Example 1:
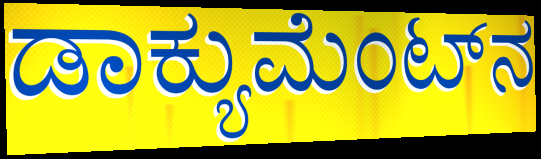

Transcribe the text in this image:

ಡಾಕ್ಯುಮೆಂಟ್‌ನ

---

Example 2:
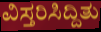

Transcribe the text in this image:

ವಿಸ್ತರಿಸಿದ್ದಿತು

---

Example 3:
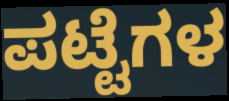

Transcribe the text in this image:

ಪಟ್ಟೆಗಳ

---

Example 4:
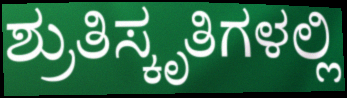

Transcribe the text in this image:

ಶ್ರುತಿಸ್ಕೃತಿಗಳಲ್ಲಿ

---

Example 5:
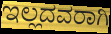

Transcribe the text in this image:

ಇಲ್ಲದವರಾಗಿ